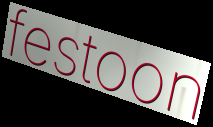
festoon